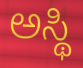
ಅಸ್ಥಿ